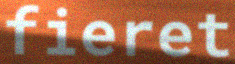
fieret